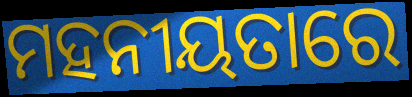
ମହନୀୟତାରେ